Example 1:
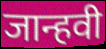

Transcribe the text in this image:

जान्हवी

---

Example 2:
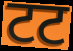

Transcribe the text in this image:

टट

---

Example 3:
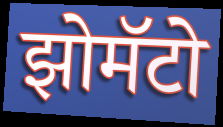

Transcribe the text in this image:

झोमॅटो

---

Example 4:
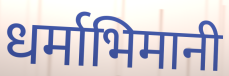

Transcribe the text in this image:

धर्माभिमानी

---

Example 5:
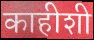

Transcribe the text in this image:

काहीशी